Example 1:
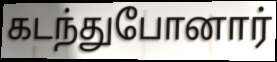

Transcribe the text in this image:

கடந்துபோனார்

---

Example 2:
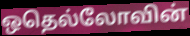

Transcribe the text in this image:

ஒதெல்லோவின்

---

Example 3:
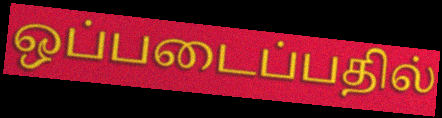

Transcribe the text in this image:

ஒப்படைப்பதில்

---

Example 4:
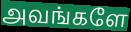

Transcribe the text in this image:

அவங்களே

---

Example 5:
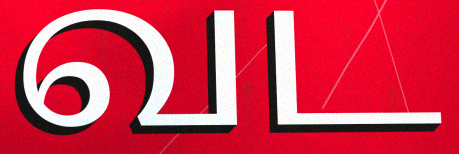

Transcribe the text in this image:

வட